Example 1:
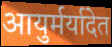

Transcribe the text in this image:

आयुर्मर्यादेत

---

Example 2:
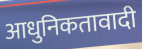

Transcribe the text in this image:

आधुनिकतावादी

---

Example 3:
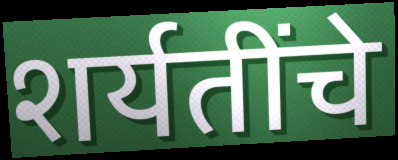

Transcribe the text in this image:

शर्यतींचे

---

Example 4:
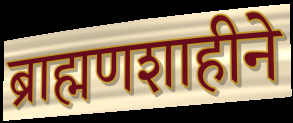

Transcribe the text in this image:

ब्राह्मणशाहीने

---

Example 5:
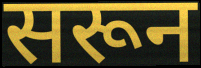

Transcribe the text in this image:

सरून